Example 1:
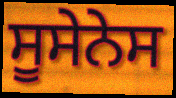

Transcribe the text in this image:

ਸੂਸੇਨੇਸ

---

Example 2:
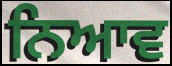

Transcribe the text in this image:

ਨਿਆਵ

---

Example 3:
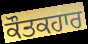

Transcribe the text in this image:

ਕੌਤਕਹਾਰ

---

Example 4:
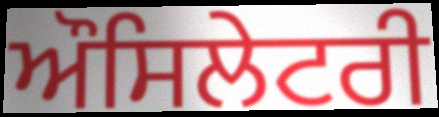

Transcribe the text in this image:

ਔਸਿਲੇਟਰੀ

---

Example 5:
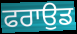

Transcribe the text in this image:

ਫਰਾਉਡ